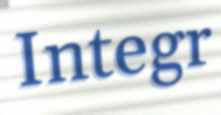
Integr